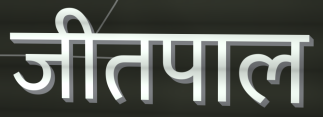
जीतपाल